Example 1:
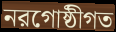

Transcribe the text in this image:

নরগোষ্ঠীগত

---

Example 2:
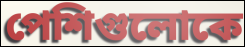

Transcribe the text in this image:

পেশিগুলোকে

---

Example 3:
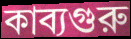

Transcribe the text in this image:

কাব্যগুরু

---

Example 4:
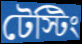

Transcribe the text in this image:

টেস্টিং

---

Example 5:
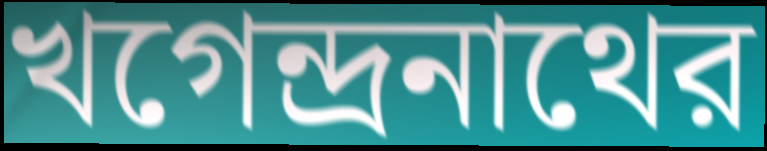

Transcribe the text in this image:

খগেন্দ্রনাথের